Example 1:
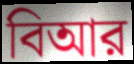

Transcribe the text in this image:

বিআর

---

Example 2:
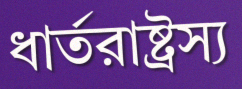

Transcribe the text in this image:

ধার্তরাষ্ট্রস্য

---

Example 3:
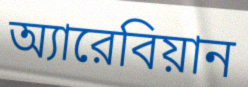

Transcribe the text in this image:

অ্যারেবিয়ান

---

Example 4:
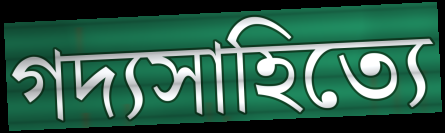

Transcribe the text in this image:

গদ্যসাহিত্যে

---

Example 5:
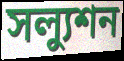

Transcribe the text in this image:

সল্যুশন